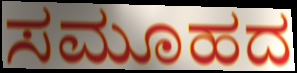
ಸಮೂಹದ